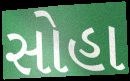
સોહા